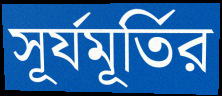
সূর্যমূর্তির